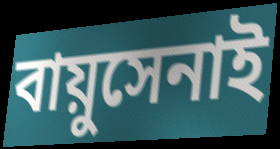
বায়ুসেনাই